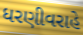
ધરણીવરાહે